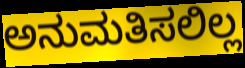
ಅನುಮತಿಸಲಿಲ್ಲ